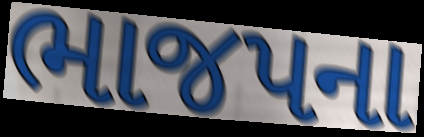
ભાજપના